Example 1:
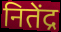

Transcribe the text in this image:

नितेंद्र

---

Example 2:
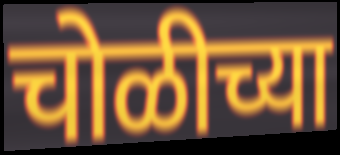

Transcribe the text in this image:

चोळीच्या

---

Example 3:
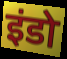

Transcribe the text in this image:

इंडो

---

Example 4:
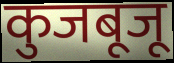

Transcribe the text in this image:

कुजबूजू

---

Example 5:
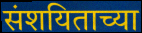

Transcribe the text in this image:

संशयिताच्या